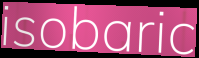
isobaric